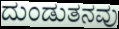
ದುಂಡುತನವು